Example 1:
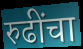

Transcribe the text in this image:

रुढींचा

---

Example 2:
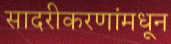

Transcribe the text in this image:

सादरीकरणांमधून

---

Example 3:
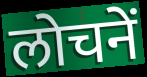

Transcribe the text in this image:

लोचनें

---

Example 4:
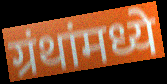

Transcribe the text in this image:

ग्रंथांमध्ये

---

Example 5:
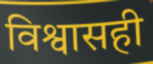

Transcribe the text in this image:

विश्वासही